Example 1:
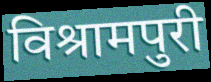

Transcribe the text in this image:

विश्रामपुरी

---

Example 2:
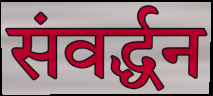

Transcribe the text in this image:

संवर्द्धन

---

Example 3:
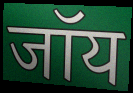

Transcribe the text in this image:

जॉय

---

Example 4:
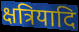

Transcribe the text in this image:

क्षत्रियादि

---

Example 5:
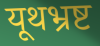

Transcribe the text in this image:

यूथभ्रष्ट